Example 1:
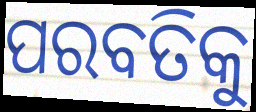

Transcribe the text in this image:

ପରବତିକୁ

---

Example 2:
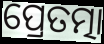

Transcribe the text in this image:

ପ୍ରେତତ୍ମା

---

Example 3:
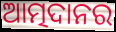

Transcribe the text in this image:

ଆତ୍ମଦାନର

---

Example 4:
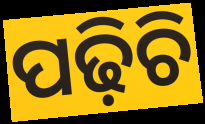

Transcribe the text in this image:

ପଢ଼ିଚି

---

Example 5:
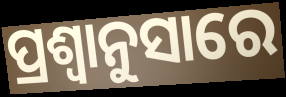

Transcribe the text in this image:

ପ୍ରଶ୍ବାନୁସାରେ